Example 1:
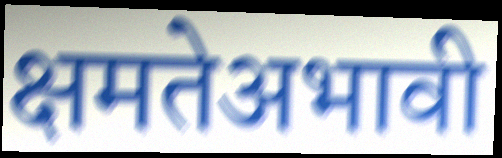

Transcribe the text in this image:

क्षमतेअभावी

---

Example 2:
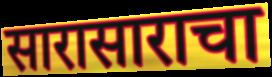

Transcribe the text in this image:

सारासाराचा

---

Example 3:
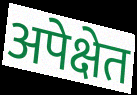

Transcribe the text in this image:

अपेक्षेत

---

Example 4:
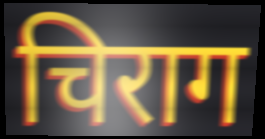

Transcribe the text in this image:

चिराग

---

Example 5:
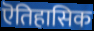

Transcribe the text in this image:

ऎतिहासिक